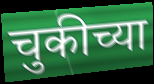
चुकीच्या